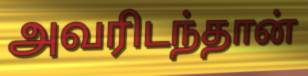
அவரிடந்தான்